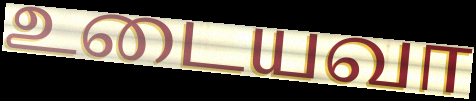
உடையவா